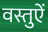
वस्तुऐं